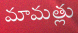
మామత్లు